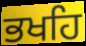
ਭਖਹਿ